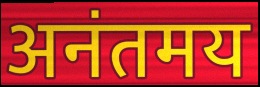
अनंतमय